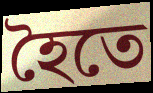
হৈতে